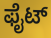
ಫೈಟ್